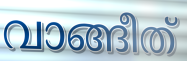
വാങ്ങീത്